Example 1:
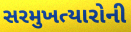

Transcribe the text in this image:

સરમુખત્યારોની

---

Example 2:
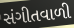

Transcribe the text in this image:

સંગીતવાળી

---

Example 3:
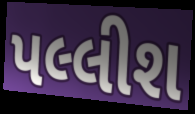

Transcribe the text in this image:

પલ્લીશ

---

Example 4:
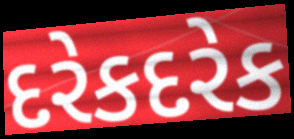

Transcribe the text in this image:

દરેકદરેક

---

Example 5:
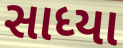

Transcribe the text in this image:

સાધ્યા